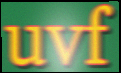
uvf